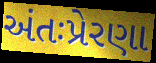
અંતઃપ્રેરણા